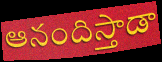
ఆనందిస్తాడా